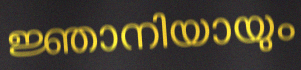
ജ്ഞാനിയായും